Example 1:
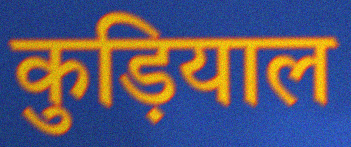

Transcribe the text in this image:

कुड़ियाल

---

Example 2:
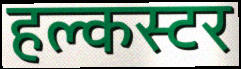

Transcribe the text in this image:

हल्कस्टर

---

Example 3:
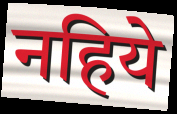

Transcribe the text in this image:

नहिये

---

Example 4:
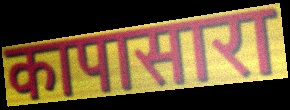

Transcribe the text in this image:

कापासारा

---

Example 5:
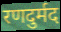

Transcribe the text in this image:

रणदुर्मद